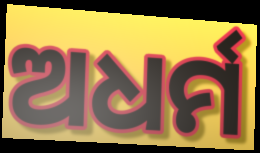
ଅଧର୍ମ